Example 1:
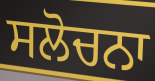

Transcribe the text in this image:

ਸਲੋਚਨਾ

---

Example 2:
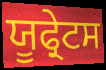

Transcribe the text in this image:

ਯੂਫ੍ਰੇਟਸ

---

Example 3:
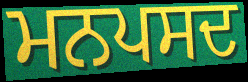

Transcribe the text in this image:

ਮਨਪਸਦ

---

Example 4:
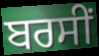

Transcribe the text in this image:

ਬਰਸੀਂ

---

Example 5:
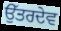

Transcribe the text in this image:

ਉੱਤਰਦੇਵ